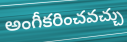
అంగీకరించవచ్చు